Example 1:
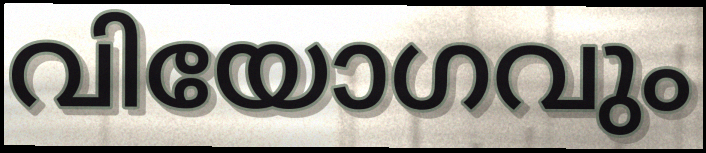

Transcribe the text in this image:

വിയോഗവും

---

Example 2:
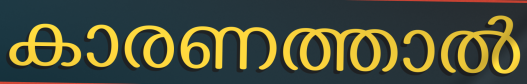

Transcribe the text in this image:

കാരണത്താൽ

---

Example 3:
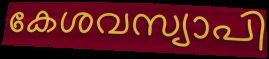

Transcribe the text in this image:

കേശവസ്യാപി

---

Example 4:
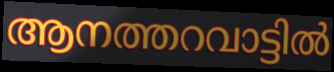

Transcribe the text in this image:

ആനത്തറവാട്ടിൽ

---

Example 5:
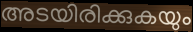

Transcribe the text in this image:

അടയിരിക്കുകയും